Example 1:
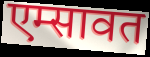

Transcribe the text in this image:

एम्सावत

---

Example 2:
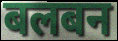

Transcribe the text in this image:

बलबन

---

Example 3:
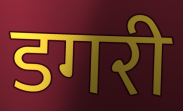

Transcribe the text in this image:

डगरी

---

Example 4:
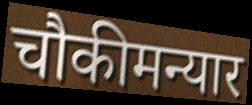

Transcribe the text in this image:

चौकीमन्यार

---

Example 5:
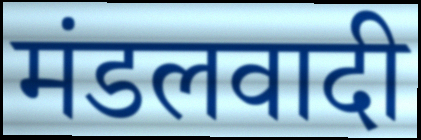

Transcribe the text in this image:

मंडलवादी